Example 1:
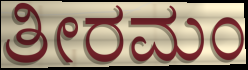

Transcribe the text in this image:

ತೀರಮಂ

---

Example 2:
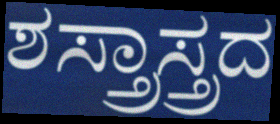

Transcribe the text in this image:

ಶಸ್ತ್ರಾಸ್ತ್ರದ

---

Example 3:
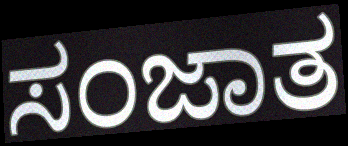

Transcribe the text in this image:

ಸಂಜಾತ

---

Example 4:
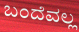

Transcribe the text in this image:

ಬಂದೆವಲ್ಲ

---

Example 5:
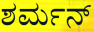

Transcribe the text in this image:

ಶರ್ಮನ್